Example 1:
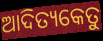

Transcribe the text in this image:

ଆଦିତ୍ୟକେତୁ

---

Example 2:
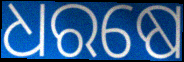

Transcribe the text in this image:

ଧରଷେ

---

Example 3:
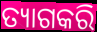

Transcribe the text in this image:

ତ୍ଯାଗକରି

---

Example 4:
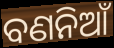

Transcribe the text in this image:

ବଣନିଆଁ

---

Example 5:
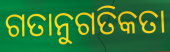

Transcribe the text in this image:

ଗତାନୁଗତିକତା